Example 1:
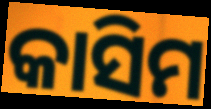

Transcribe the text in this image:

କାସିମ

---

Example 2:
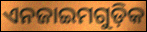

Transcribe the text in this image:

ଏନଜାଇମଗୁଡ଼ିକ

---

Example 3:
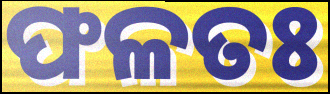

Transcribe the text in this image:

ଫଳତଃ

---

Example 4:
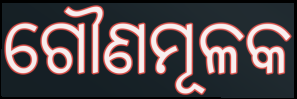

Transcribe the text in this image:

ଗୌଣମୂଳକ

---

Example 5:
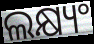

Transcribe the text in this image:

ଲକ୍ଷ୍ୟଂ